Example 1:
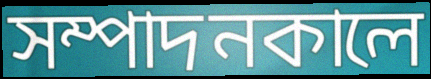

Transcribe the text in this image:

সম্পাদনকালে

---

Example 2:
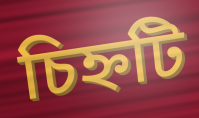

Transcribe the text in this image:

চিহ্নটি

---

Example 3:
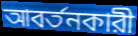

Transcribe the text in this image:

আবর্তনকারী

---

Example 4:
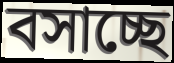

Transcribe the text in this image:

বসাচ্ছে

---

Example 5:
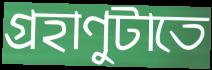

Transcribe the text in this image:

গ্রহাণুটাতে